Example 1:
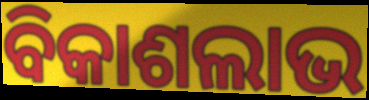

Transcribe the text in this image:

ବିକାଶଲାଭ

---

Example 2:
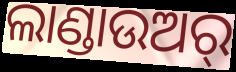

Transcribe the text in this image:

ଲାଣ୍ଡାଉଅର୍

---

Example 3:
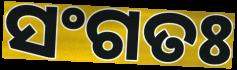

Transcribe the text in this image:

ସଂଗତଃ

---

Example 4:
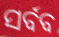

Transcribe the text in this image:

ସର୍ବବ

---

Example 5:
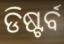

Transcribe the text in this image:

ଡିଷ୍ଟର୍ବ